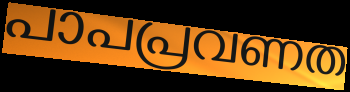
പാപപ്രവണത